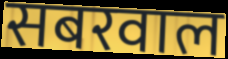
सबरवाल